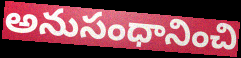
అనుసంధానించి